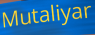
Mutaliyar